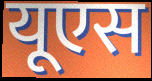
यूएस